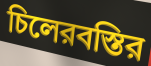
চিলেরবস্তির